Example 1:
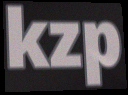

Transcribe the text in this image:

kzp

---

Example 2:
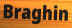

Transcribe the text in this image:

Braghin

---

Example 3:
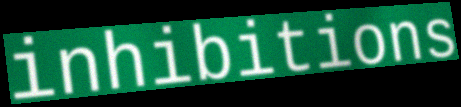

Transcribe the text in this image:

inhibitions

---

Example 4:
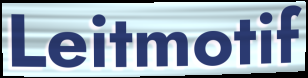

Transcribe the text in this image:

Leitmotif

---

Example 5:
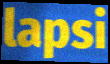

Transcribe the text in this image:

lapsi